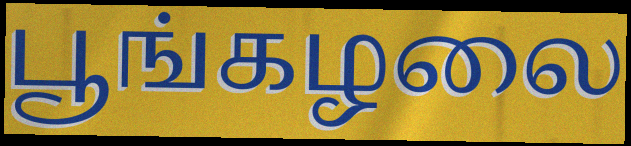
பூங்கழலை